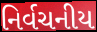
નિર્વચનીય